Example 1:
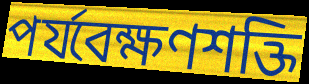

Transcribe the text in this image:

পর্যবেক্ষণশক্তি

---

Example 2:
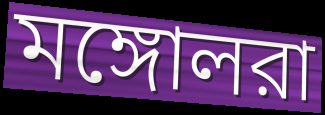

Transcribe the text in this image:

মঙ্গোলরা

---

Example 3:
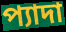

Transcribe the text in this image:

প্যাদা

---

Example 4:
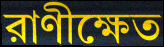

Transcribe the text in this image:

রাণীক্ষেত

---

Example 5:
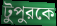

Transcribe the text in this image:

টুপুরকে